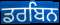
ਡਰਬਿਨ